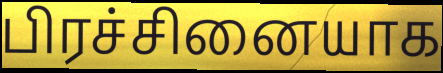
பிரச்சினையாக